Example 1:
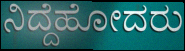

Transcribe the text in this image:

ನಿದ್ದೆಹೋದರು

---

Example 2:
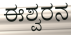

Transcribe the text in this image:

ಈಶ್ವರನ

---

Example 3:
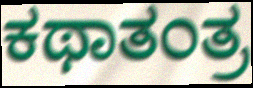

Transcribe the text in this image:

ಕಥಾತಂತ್ರ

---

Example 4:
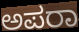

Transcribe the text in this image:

ಅಪರಾ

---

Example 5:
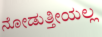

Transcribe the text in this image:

ನೋಡುತ್ತೀಯಲ್ಲ